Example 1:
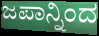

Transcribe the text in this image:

ಜಪಾನ್ನಿಂದ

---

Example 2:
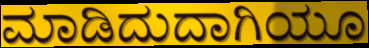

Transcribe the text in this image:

ಮಾಡಿದುದಾಗಿಯೂ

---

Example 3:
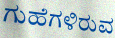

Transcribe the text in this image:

ಗುಹೆಗಳಿರುವ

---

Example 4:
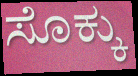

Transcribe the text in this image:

ಸೊಕ್ಕು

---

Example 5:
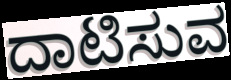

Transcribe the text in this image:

ದಾಟಿಸುವ